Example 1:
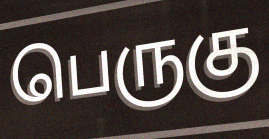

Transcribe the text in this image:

பெருகு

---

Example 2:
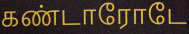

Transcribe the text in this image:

கண்டாரோடே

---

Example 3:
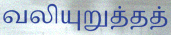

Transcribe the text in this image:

வலியுறுத்தத்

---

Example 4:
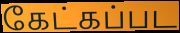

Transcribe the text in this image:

கேட்கப்பட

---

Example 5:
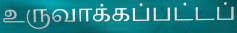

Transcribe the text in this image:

உருவாக்கப்பட்டப்